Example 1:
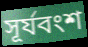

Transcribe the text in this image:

সূর্যবংশ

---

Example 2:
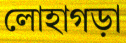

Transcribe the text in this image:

লোহাগড়া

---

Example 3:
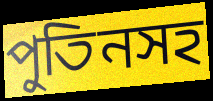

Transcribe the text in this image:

পুতিনসহ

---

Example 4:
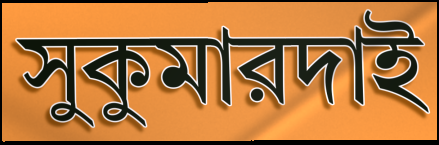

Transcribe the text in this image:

সুকুমারদাই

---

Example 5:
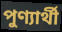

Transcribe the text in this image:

পুণ্যার্থী